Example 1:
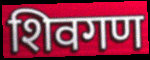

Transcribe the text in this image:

शिवगण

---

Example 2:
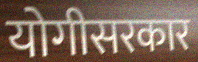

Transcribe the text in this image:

योगीसरकार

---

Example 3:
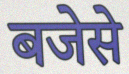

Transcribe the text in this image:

बजेसे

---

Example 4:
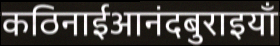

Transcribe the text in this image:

कठिनाईआनंदबुराइयाँ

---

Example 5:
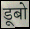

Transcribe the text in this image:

डूबो